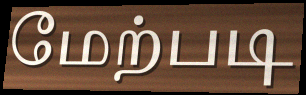
மேற்படி